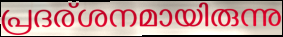
പ്രദര്ശനമായിരുന്നു